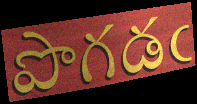
పొగడఁ